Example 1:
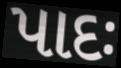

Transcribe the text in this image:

પાદઃ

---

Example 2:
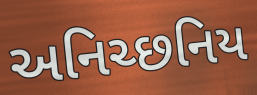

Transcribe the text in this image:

અનિચ્છનિય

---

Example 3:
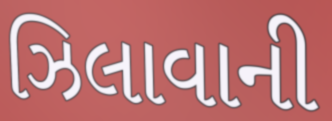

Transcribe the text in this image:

ઝિલાવાની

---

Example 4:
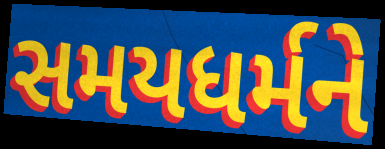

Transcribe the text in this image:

સમયધર્મને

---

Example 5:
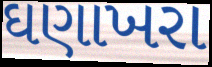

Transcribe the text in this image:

ઘણાખરા